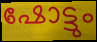
ഷോട്ടും